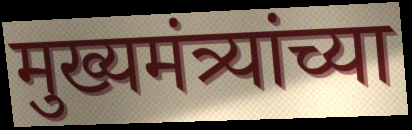
मुख्यमंत्र्यांच्या